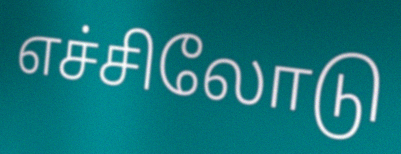
எச்சிலோடு